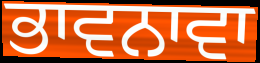
ਭਾਵਨਾਵਾ